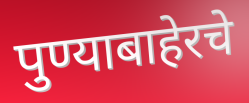
पुण्याबाहेरचे